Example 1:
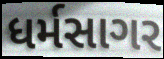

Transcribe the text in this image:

ધર્મસાગર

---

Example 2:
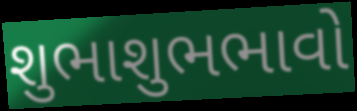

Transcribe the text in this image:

શુભાશુભભાવો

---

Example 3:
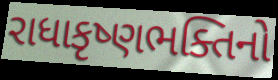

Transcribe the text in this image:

રાધાકૃષ્ણભક્તિનો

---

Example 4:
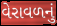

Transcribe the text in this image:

વેરાવળનું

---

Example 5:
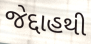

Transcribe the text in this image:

જેદ્દાહથી